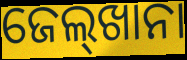
ଜେଲ୍‌ଖାନା